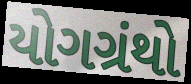
યોગગ્રંથો